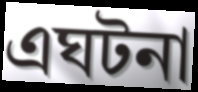
এঘটনা